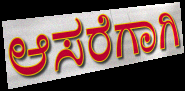
ಆಸರೆಗಾಗಿ